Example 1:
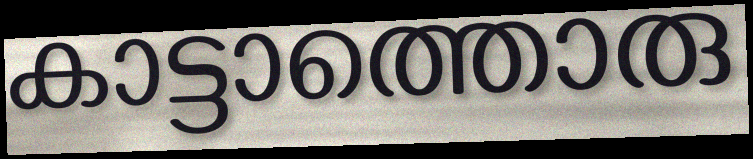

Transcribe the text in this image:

കാട്ടാത്തൊരു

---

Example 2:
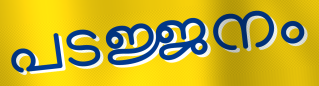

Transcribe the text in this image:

പടജ്ജനം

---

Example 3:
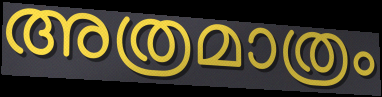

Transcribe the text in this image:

അത്രമാത്രം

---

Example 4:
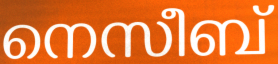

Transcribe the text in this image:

നെസീബ്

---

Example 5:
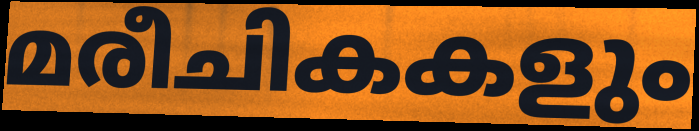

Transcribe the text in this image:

മരീചികകളും